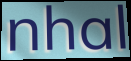
nhal